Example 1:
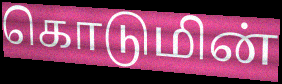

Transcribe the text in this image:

கொடுமின்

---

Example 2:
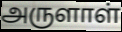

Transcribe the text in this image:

அருளாள்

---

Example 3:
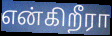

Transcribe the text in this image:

என்கிறீரா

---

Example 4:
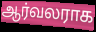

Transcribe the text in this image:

ஆர்வலராக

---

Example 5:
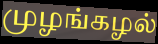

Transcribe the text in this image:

முழங்கழல்